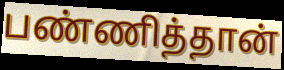
பண்ணித்தான்